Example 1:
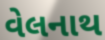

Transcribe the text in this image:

વેલનાથ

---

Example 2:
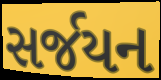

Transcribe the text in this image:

સર્જયન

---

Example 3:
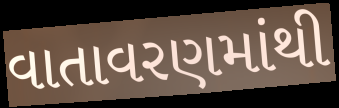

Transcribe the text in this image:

વાતાવરણમાંથી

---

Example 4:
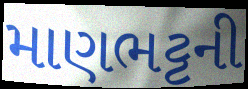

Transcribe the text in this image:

માણભટ્ટની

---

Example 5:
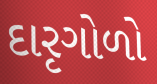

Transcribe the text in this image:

દારૃગોળો